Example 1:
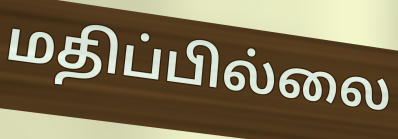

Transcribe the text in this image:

மதிப்பில்லை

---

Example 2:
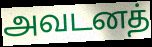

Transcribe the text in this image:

அவடனத்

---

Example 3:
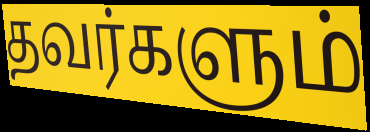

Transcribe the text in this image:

தவர்களும்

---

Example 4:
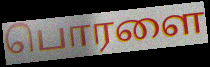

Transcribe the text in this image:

பொரளை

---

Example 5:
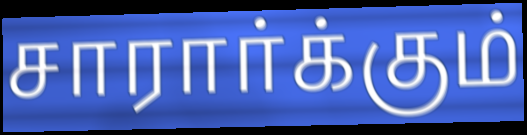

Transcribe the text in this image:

சாரார்க்கும்